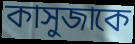
কাসুজাকে